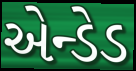
એન્ડેડ